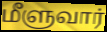
மீளுவார்